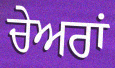
ਚੇਅਰਾਂ